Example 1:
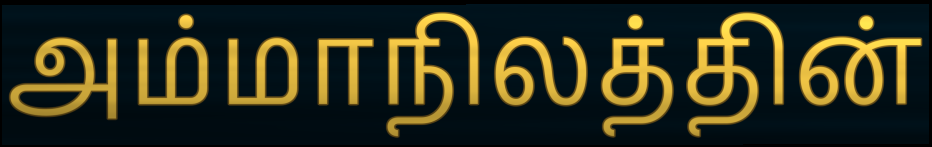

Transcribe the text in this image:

அம்மாநிலத்தின்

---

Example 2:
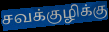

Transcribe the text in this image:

சவக்குழிக்கு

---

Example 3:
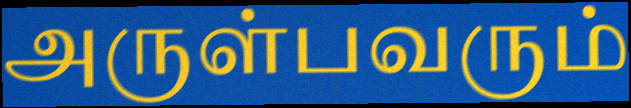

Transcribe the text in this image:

அருள்பவரும்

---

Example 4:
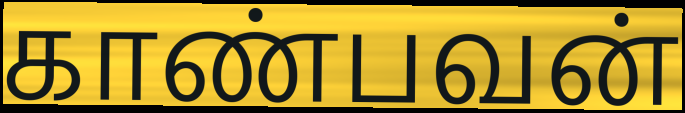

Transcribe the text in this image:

காண்பவன்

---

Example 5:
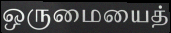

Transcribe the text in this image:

ஒருமையைத்